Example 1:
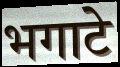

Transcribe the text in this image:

भगाटे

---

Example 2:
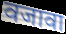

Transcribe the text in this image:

वजावा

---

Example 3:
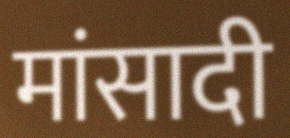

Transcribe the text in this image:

मांसादी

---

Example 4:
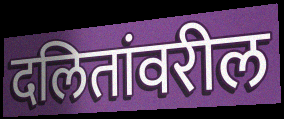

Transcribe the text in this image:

दलितांवरील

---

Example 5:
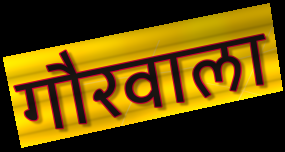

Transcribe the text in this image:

गौरवाला